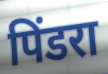
पिंडरा